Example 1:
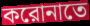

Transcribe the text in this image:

করোনাতে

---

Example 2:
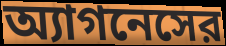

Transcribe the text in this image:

অ্যাগনেসের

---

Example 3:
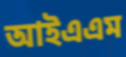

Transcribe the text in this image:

আইএএম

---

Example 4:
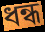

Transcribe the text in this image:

ধন্ধ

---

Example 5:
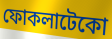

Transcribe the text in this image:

ফোকলাটেকো